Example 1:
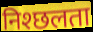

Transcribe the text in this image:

निश्छलता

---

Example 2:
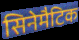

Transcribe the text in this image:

सिनेमैटिक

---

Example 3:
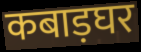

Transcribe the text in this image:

कबाड़घर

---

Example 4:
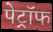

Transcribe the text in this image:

पेट्रॉफ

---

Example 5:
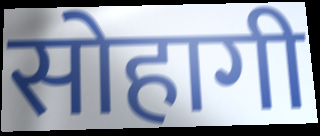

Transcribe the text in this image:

सोहागी